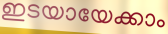
ഇടയായേക്കാം